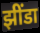
झींडा